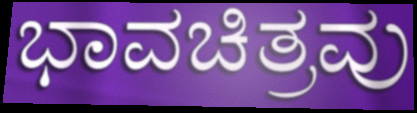
ಭಾವಚಿತ್ರವು